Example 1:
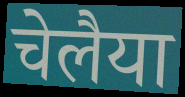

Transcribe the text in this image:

चेलैया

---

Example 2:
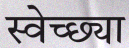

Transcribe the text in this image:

स्वेच्छ्या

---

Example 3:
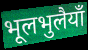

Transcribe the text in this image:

भूलभुलैयाँ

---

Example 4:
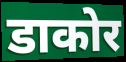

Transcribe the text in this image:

डाकोर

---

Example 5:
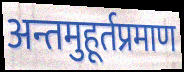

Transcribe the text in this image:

अन्तमुहूर्तप्रमाण